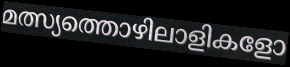
മത്സ്യത്തൊഴിലാളികളോ